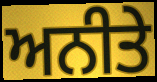
ਅਨੀਤੇ